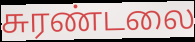
சுரண்டலை